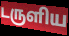
டருளிய